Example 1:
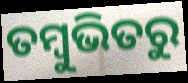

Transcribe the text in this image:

ତମ୍ବୁଭିତରୁ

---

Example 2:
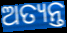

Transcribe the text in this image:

ଅତ୍ୟନ୍ତ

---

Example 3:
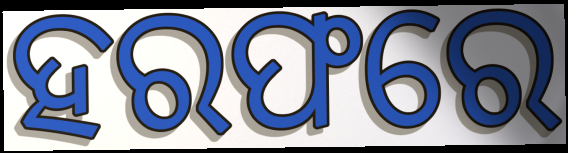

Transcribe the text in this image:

ହରଫରେ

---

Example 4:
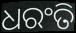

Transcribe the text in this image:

ଧରଂତି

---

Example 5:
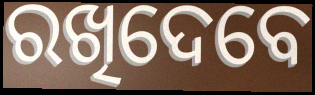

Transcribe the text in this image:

ରଖିଦେବେ